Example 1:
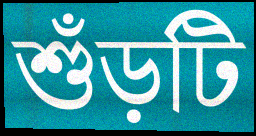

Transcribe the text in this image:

শুঁড়টি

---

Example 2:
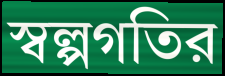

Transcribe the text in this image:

স্বল্পগতির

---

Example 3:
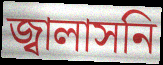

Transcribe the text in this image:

জ্বালাসনি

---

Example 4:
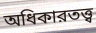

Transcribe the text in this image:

অধিকারতত্ত্ব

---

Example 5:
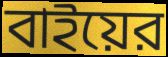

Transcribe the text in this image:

বাইয়ের